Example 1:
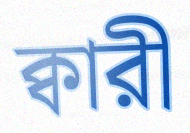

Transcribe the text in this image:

ক্বারী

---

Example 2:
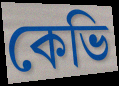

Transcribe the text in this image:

কেভি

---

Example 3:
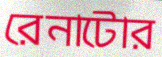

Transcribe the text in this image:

রেনাটোর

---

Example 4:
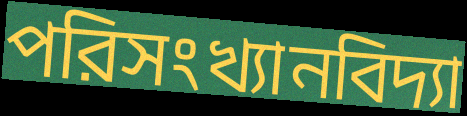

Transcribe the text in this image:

পরিসংখ্যানবিদ্যা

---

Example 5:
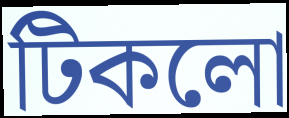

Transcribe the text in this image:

টিকলো